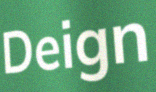
Deign